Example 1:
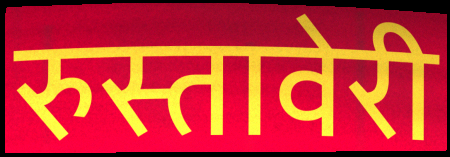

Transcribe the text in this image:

रुस्तावेरी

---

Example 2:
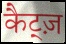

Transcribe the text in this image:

कैट्ज़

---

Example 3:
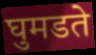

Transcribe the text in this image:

घुमडते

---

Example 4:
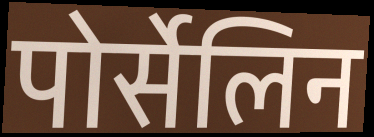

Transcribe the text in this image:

पोर्सेलिन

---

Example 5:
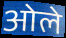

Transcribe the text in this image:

ओले